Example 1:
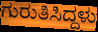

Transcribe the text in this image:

ಗುರುತಿಸಿದ್ದಳು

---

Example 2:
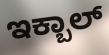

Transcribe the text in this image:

ಇಕ್ಬಾಲ್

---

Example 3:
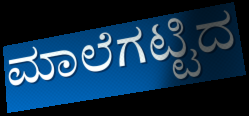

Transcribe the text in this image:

ಮಾಲೆಗಟ್ಟಿದ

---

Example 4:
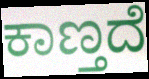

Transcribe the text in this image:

ಕಾಣ್ತದೆ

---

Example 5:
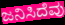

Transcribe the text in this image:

ಜನಿಸಿದೆವು